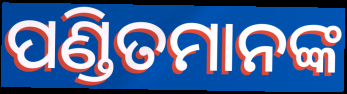
ପଣ୍ଡିତମାନଙ୍କ